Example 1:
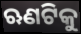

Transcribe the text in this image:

ଋଣଟିକୁ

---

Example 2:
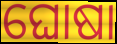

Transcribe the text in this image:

ଘୋଷା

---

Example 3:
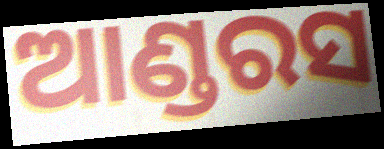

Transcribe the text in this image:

ଆଣ୍ଡରସ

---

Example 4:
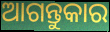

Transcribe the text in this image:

ଆଗନ୍ତୁକାର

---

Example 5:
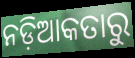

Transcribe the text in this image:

ନଡ଼ିଆକତାରୁ